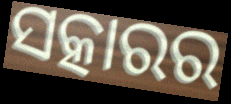
ସତ୍କାରର